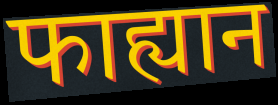
फाह्यान